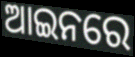
ଆଇନରେ